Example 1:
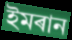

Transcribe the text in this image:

ইমৰান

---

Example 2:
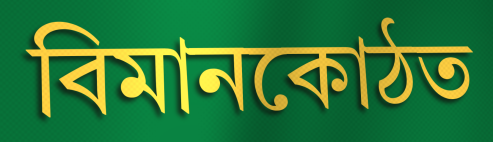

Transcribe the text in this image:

বিমানকোঠত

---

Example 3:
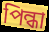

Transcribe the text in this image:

পিন্ধা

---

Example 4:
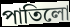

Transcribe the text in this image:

পাতিলো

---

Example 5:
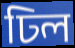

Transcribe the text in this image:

ঢিল